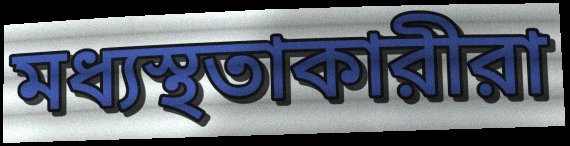
মধ্যস্থতাকারীরা